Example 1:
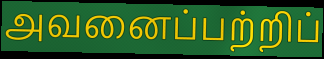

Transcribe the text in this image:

அவனைப்பற்றிப்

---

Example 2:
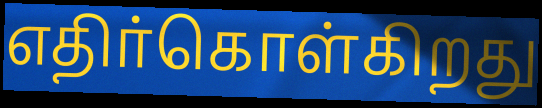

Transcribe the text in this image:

எதிர்கொள்கிறது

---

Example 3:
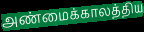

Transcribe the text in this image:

அண்மைக்காலத்திய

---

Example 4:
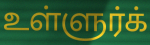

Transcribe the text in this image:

உள்ளுர்க்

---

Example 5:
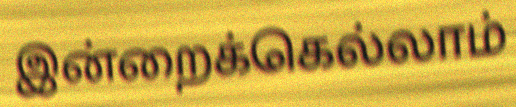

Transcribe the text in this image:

இன்றைக்கெல்லாம்